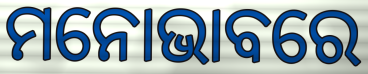
ମନୋଭାବରେ